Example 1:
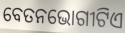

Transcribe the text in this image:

ବେତନଭୋଗୀଟିଏ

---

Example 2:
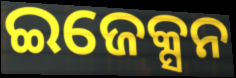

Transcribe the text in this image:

ଇଜେକ୍ସନ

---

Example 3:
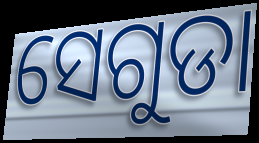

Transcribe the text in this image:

ସେଗୁଡା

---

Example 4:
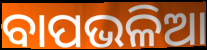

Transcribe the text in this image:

ବାପଭଳିଆ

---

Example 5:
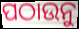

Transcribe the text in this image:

ପଠାଉନୁ